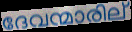
ദേവന്മാരില്